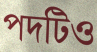
পদটিও